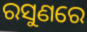
ରସୁଣରେ